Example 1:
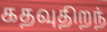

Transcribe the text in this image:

கதவுதிறந்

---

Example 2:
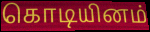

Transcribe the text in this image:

கொடியினம்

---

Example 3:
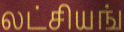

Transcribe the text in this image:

லட்சியங்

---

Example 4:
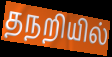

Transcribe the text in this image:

தநறியில்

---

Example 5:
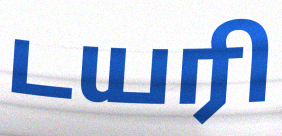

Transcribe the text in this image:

டயரி